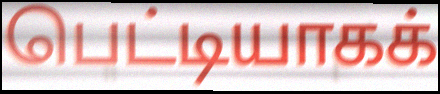
பெட்டியாகக்